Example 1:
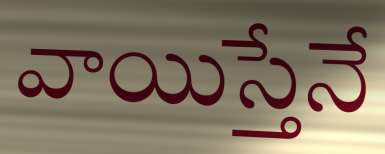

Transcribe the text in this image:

వాయిస్తేనే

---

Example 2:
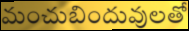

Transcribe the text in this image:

మంచుబిందువులతో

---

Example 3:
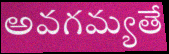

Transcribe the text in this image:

అవగమ్యతే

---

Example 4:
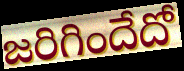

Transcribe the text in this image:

జరిగిందేదో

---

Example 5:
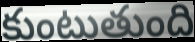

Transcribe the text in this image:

కుంటుతుంది